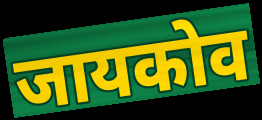
जायकोव